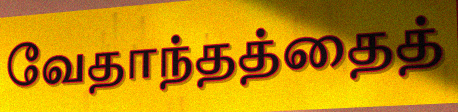
வேதாந்தத்தைத்